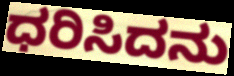
ಧರಿಸಿದನು